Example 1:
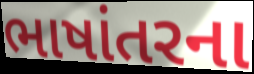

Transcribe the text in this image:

ભાષાંતરના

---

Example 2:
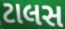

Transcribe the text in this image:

ટાલસ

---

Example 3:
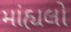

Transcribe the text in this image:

માંહ્યલો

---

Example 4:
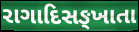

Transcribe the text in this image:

રાગાદિસઙ્ખાતા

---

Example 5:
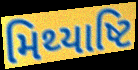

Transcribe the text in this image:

મિથ્યાષ્ટિ